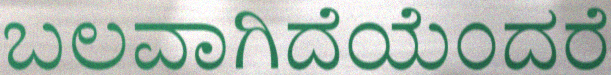
ಬಲವಾಗಿದೆಯೆಂದರೆ